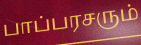
பாப்பரசரும்